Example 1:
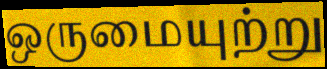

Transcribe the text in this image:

ஒருமையுற்று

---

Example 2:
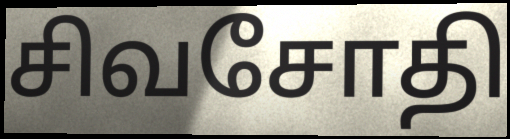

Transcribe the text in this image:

சிவசோதி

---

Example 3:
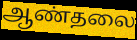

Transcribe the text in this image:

ஆண்தலை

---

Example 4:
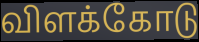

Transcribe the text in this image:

விளக்கோடு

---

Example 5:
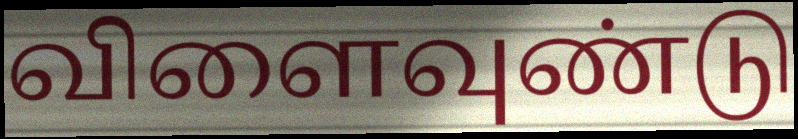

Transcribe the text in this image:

விளைவுண்டு